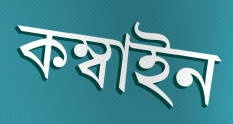
কম্বাইন